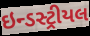
ઇન્ડસ્ટ્રીયલ